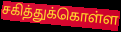
சகித்துக்கொள்ள